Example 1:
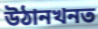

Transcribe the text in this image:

উঠানখনত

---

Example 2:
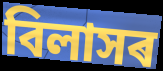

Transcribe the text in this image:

বিলাসৰ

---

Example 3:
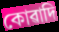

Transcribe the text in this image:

কোৱাদি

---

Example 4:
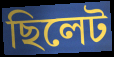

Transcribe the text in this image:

ছিলেট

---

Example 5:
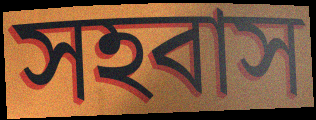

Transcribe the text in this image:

সহবাস